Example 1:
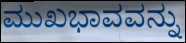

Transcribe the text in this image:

ಮುಖಭಾವವನ್ನು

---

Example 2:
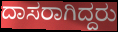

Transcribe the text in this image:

ದಾಸರಾಗಿದ್ದರು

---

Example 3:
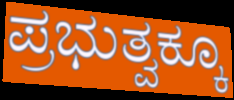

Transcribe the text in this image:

ಪ್ರಭುತ್ವಕ್ಕೂ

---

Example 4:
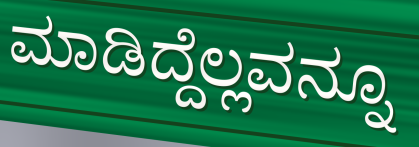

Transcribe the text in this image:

ಮಾಡಿದ್ದೆಲ್ಲವನ್ನೂ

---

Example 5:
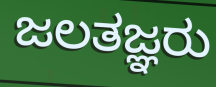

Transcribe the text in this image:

ಜಲತಜ್ಞರು